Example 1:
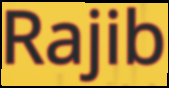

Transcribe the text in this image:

Rajib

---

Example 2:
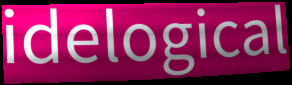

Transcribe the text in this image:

idelogical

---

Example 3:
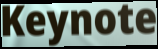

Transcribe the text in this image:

Keynote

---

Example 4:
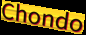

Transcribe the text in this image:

Chondo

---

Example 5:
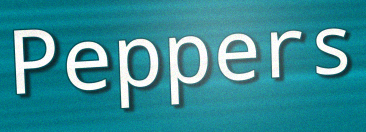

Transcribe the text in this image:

Peppers